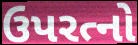
ઉપરત્નો